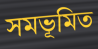
সমভূমিত